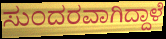
ಸುಂದರವಾಗಿದ್ದಾಳೆ